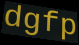
dgfp